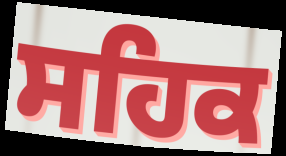
ਸਹਿਕ